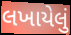
લખાયેલું